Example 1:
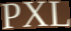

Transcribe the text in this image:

PXL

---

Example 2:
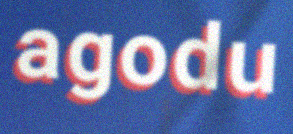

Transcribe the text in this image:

agodu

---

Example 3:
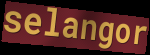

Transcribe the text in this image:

selangor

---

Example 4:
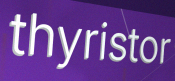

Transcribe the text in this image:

thyristor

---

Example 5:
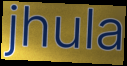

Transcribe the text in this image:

jhula